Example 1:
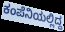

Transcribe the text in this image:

ಕಂಪೆನಿಯಲ್ಲಿದ್ದ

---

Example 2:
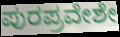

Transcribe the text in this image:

ಪುರಪ್ರವೇಶೇ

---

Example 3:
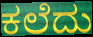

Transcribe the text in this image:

ಕಲೆದು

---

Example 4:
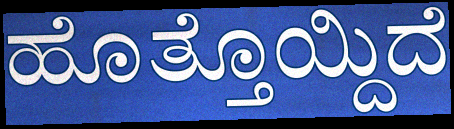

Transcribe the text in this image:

ಹೊತ್ತೊಯ್ದಿದೆ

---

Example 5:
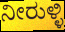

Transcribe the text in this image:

ನೀರುಳ್ಳಿ